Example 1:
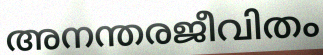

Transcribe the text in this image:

അനന്തരജീവിതം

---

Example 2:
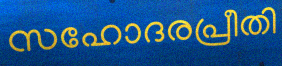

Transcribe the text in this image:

സഹോദരപ്രീതി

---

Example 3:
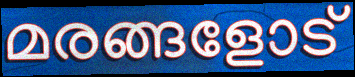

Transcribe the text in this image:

മരങ്ങളോട്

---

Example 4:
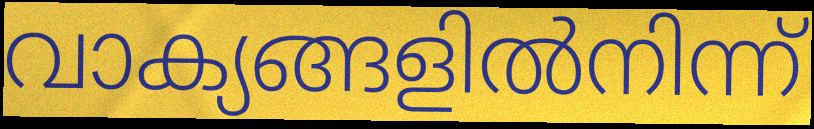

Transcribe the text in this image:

വാക്യങ്ങളിൽനിന്ന്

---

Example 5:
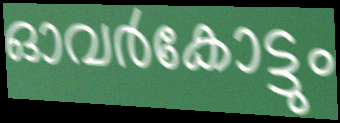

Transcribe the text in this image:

ഓവർകോട്ടും